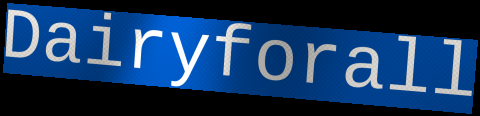
Dairyforall